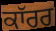
ਕਾੱਰਰ